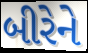
બીરેને